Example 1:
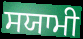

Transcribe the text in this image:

ਸਯਾਮੀ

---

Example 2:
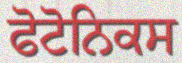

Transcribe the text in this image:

ਫੋਟੋਨਿਕਸ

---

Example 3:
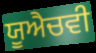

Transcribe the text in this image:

ਯੂਐਚਵੀ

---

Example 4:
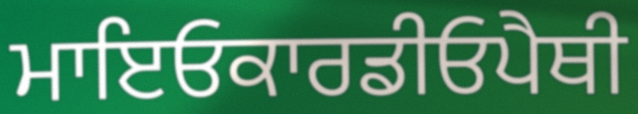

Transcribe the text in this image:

ਮਾਇਓਕਾਰਡੀਓਪੈਥੀ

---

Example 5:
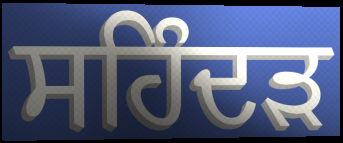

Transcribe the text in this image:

ਸਹਿੰਦੜ